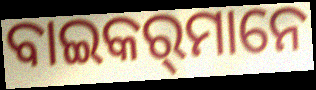
ବାଇକର୍‌ମାନେ